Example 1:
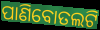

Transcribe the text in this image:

ପାଣିବୋତଲଟି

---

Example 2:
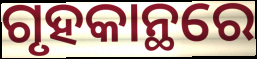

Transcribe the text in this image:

ଗୃହକାନ୍ଥରେ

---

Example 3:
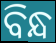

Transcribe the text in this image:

ବିନ୍ଧ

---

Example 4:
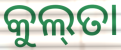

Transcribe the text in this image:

କୁଲ୍‌ତା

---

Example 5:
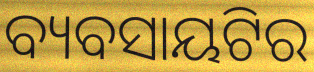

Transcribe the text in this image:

ବ୍ୟବସାୟଟିର